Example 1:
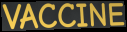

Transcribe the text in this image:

VACCINE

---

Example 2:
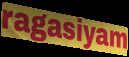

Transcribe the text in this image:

ragasiyam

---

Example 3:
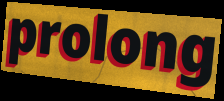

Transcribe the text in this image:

prolong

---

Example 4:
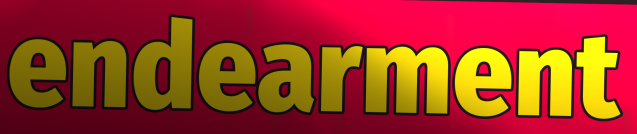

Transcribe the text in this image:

endearment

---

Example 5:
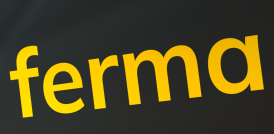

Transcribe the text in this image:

ferma